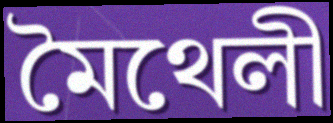
মৈথেলী